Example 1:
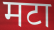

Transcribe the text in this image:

मटा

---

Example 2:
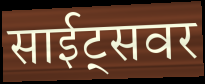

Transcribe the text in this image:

साईट्सवर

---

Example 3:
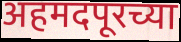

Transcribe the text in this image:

अहमदपूरच्या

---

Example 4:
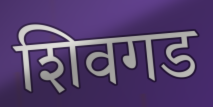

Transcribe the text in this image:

शिवगड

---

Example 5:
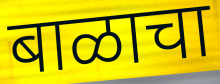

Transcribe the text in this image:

बाळाचा